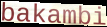
bakambi